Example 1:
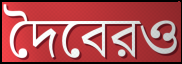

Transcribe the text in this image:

দৈবেরও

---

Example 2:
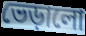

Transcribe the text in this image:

ভেড়ালো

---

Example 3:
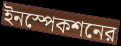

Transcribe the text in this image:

ইনস্পেকশনের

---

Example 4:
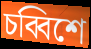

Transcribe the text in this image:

চব্বিশে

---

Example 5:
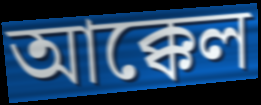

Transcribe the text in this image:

আক্কেল